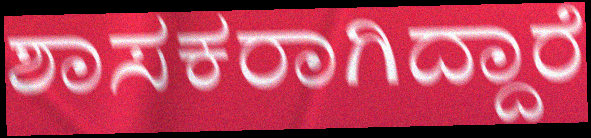
ಶಾಸಕರಾಗಿದ್ದಾರೆ